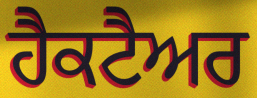
ਹੈਕਟੈਅਰ